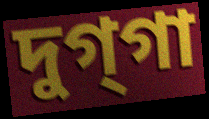
দুগ্‌গা